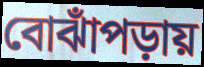
বোঝাঁপড়ায়